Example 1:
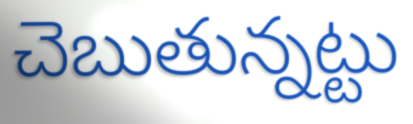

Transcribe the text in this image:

చెబుతున్నట్టు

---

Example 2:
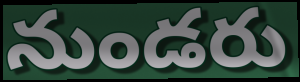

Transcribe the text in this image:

నుండరు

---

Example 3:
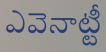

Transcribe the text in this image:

ఎవెనాట్టీ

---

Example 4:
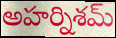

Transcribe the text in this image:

అహర్నిశమ్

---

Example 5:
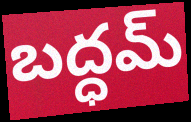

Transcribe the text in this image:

బద్ధమ్